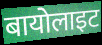
बायोलाइट